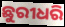
ଛୁରୀଧରି